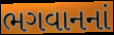
ભગવાનનાં